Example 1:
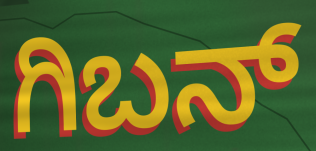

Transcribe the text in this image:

ಗಿಬನ್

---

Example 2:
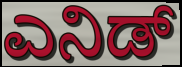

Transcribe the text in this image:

ಎನಿಡ್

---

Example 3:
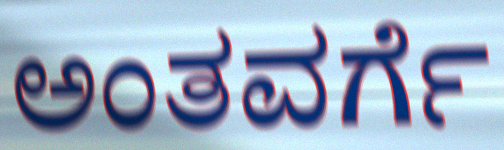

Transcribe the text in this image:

ಅಂತವರ್ಗೆ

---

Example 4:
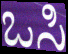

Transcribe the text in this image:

ಒಸಿ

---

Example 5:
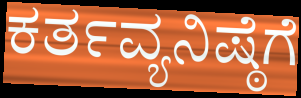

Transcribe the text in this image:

ಕರ್ತವ್ಯನಿಷ್ಠೆಗೆ